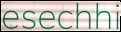
esechhi